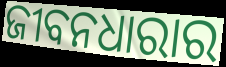
ଜୀବନଧାରାର